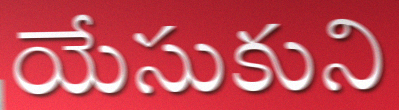
యేసుకుని